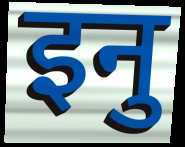
इनु